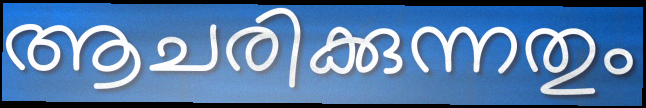
ആചരിക്കുന്നതും